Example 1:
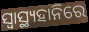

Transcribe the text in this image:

ସ୍ୱାସ୍ଥ୍ୟହାନିରେ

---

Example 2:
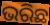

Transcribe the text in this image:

ଭରିଛ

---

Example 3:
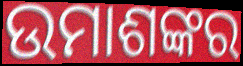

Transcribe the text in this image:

ଉମାଶଙ୍କର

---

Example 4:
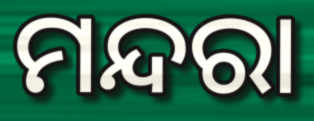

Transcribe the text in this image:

ମନ୍ଦରା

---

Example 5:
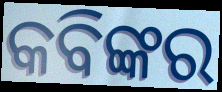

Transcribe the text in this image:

କବିଙ୍କର